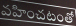
వహించటంతో